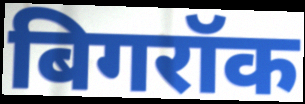
बिगरॉक